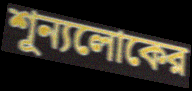
শূন্যলোকের